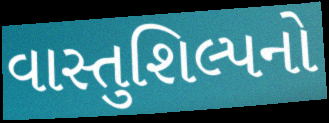
વાસ્તુશિલ્પનો